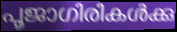
പൂജാഗിരികൾക്കു